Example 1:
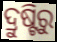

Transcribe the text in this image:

ଦ୍ରୁଷ୍ଟିରୁ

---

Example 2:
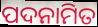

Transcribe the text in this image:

ପଦନାମିତ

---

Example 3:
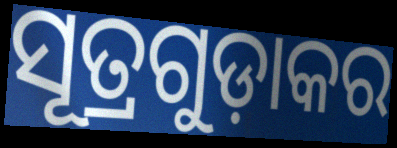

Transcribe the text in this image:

ସୂତ୍ରଗୁଡ଼ାକର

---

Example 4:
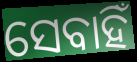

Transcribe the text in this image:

ସେବାହିଁ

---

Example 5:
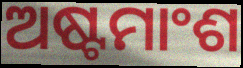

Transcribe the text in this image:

ଅଷ୍ଟମାଂଶ